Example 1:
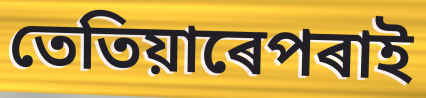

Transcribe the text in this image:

তেতিয়াৰেপৰাই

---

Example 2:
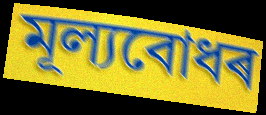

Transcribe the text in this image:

মূল্যবোধৰ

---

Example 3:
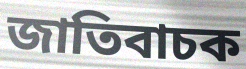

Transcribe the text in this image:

জাতিবাচক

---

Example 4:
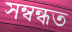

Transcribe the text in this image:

সম্বন্ধত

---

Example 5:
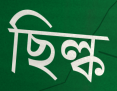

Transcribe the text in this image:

ছিল্ক